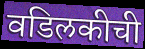
वडिलकीची